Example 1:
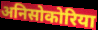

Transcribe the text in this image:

अनिसोकोरिया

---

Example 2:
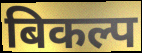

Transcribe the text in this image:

बिकल्प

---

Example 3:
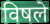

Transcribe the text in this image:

विषले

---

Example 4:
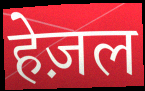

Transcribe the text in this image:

हेज़ल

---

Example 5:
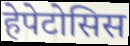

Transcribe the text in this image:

हेपेटोसिस